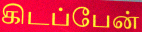
கிடப்பேன்